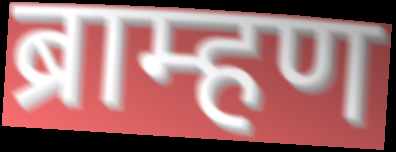
ब्राम्हण